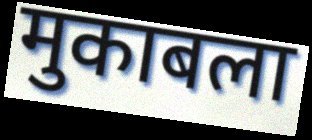
मुकाबला